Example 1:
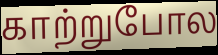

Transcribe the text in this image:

காற்றுபோல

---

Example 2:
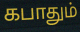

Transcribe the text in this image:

கபாதும்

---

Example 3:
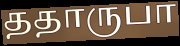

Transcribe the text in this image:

ததாருபா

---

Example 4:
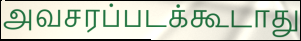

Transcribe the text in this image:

அவசரப்படக்கூடாது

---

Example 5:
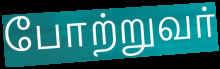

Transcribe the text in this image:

போற்றுவர்